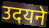
उदयने